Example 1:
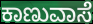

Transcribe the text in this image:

ಕಾಣುವಾಸೆ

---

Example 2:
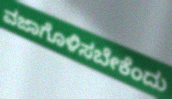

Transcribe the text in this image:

ವಜಾಗೊಳಿಸಬೇಕೆಂದು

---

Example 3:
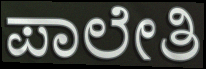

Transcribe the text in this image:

ಪಾಲೇತಿ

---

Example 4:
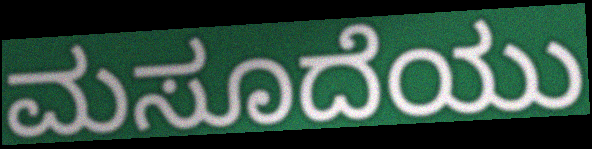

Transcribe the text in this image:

ಮಸೂದೆಯು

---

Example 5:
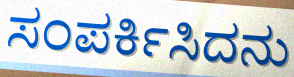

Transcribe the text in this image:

ಸಂಪರ್ಕಿಸಿದನು